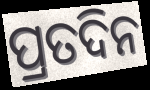
ପ୍ରତଦିନ